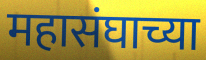
महासंघाच्या